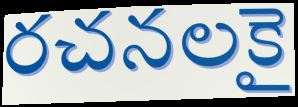
రచనలకై